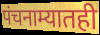
पंचनाम्यातही